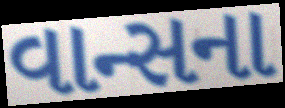
વાન્સના